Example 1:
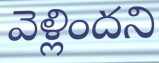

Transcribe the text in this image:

వెళ్లిందని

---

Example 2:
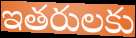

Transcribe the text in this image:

ఇతరులకు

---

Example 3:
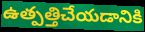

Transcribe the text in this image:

ఉత్పత్తిచేయడానికి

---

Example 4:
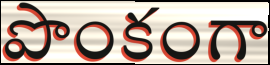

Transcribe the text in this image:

పొంకంగా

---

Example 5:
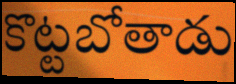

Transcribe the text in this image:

కొట్టబోతాడు